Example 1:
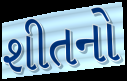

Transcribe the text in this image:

શીતનો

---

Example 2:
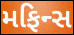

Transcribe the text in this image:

મફિન્સ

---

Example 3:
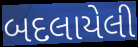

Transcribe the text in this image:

બદલાયેલી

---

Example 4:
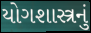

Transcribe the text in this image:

યોગશાસ્ત્રનું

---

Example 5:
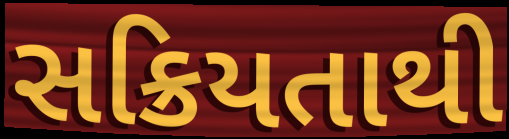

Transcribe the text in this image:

સક્રિયતાથી